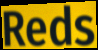
Reds